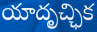
యాదృచ్ఛిక